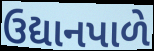
ઉદ્યાનપાળે